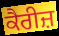
ਕੈਰੀਜ਼